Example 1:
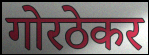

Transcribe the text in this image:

गोरठेकर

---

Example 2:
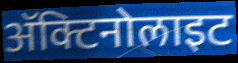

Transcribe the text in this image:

ॲक्टिनोलाइट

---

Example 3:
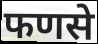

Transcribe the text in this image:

फणसे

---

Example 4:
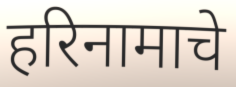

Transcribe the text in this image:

हरिनामाचे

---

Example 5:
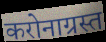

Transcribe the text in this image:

करोनाग्रस्त